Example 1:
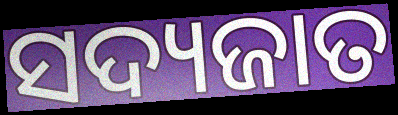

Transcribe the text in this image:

ସଦ୍ୟଜାତ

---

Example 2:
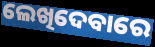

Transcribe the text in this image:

ଲେଖିଦେବାରେ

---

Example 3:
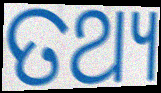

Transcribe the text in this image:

ତଥ୍ୟ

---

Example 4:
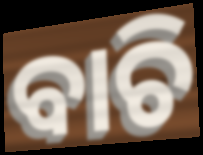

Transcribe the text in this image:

ବାଚି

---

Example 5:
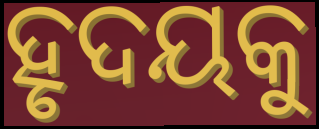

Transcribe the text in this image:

ହୃଦୟକୁ